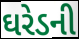
ઘરેડની